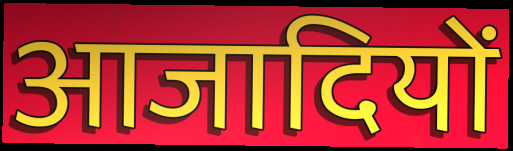
आजादियों